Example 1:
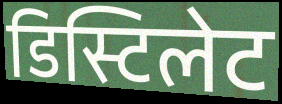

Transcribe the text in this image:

डिस्टिलेट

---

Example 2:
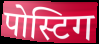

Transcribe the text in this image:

पोस्टिग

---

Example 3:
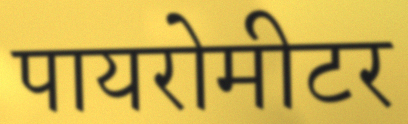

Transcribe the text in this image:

पायरोमीटर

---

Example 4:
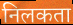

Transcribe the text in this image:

निलकता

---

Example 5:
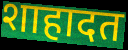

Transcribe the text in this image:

शाहादत